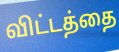
விட்டத்தை